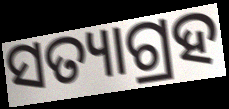
ସତ୍ୟାଗ୍ରହ